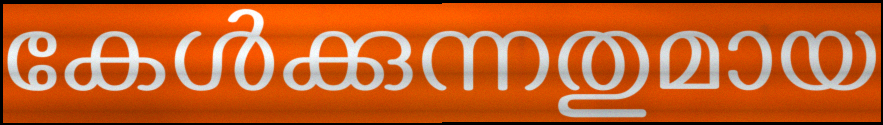
കേൾക്കുന്നതുമായ